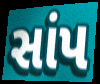
સાંપ